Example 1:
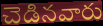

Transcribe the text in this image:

చెడినవారు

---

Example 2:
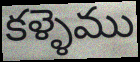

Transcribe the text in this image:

కళ్ళెము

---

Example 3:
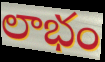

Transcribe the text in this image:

లాభం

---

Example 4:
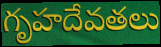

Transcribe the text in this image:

గృహదేవతలు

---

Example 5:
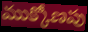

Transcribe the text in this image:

ముక్కోణపు